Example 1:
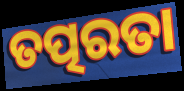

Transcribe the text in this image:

ତତ୍ପରତା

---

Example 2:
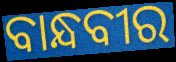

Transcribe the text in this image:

ବାନ୍ଧବୀର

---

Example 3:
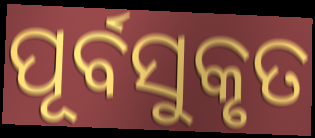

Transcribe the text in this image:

ପୂର୍ବସୁକୃତ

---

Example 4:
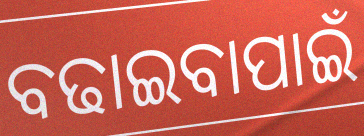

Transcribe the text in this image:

ବଢାଇବାପାଇଁ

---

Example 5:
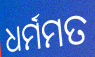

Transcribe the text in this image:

ଧର୍ମମତ